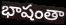
భాషంతా